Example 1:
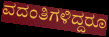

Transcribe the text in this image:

ವದಂತಿಗಳಿದ್ದರೂ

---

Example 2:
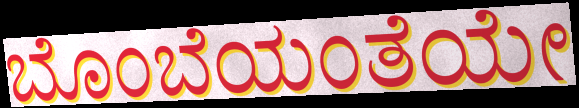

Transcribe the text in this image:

ಬೊಂಬೆಯಂತೆಯೇ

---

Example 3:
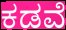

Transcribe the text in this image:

ಕಡವೆ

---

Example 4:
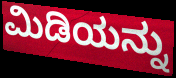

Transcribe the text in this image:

ಮಿಡಿಯನ್ನು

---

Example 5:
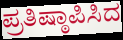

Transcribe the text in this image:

ಪ್ರತಿಷ್ಠಾಪಿಸಿದ